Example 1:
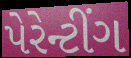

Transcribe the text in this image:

પેરેન્ટીંગ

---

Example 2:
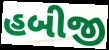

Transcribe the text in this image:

હબીજી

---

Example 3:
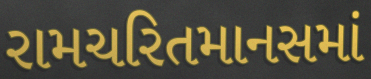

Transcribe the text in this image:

રામચરિતમાનસમાં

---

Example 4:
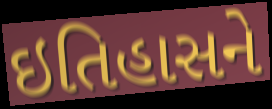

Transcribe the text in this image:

ઇતિહાસને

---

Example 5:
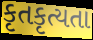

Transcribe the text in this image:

કૃતકૃત્યતા